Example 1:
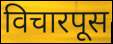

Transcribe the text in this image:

विचारपूस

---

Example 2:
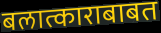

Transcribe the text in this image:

बलात्काराबाबत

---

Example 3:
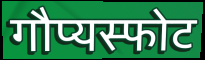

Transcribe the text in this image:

गौप्यस्फोट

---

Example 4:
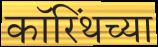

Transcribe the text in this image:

कॉरिंथच्या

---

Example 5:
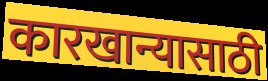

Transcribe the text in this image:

कारखान्यासाठी